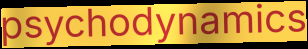
psychodynamics